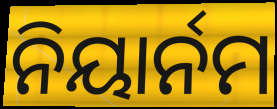
ନିୟାର୍ନମ